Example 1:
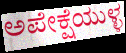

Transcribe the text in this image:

ಅಪೇಕ್ಷೆಯುಳ್ಳ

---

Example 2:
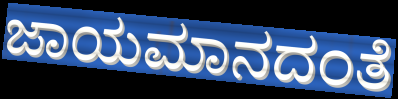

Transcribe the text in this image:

ಜಾಯಮಾನದಂತೆ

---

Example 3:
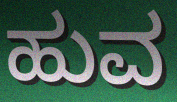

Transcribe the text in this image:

ಹುವ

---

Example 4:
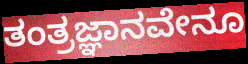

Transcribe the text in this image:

ತಂತ್ರಜ್ಞಾನವೇನೂ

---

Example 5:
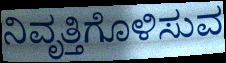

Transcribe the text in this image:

ನಿವೃತ್ತಿಗೊಳಿಸುವ